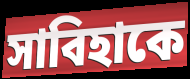
সাবিহাকে